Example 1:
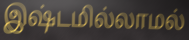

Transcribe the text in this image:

இஷ்டமில்லாமல்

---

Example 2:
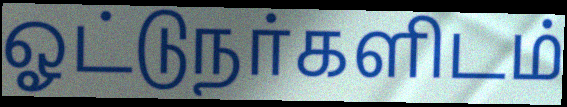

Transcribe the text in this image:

ஓட்டுநர்களிடம்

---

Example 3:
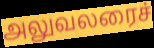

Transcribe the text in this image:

அலுவலரைச்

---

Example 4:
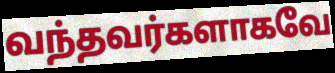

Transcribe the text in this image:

வந்தவர்களாகவே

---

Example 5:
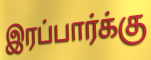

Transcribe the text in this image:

இரப்பார்க்கு